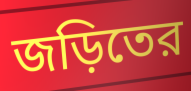
জড়িতের